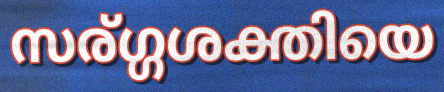
സര്ഗ്ഗശക്തിയെ